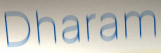
Dharam